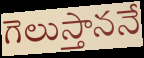
గెలుస్తాననే